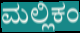
ಮಲ್ಲಿಕಂ